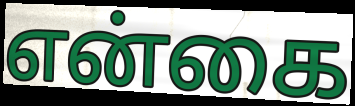
என்கை